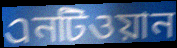
এনটিওয়ান